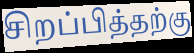
சிறப்பித்தற்கு